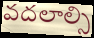
వదలాల్సి